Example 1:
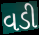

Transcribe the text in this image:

વડી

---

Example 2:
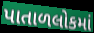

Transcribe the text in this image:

પાતાળલોકમાં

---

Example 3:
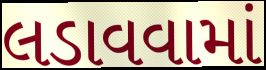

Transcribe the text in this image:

લડાવવામાં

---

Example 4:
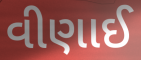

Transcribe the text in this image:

વીણાઈ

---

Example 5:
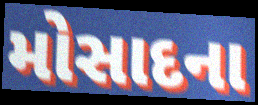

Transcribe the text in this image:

મોસાદના